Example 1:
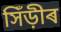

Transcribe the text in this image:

সিঁড়ীৰ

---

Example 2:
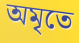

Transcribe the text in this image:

অমৃতে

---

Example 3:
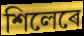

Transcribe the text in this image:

শিলেৰে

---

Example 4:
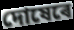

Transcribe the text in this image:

দোষেৰে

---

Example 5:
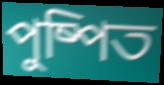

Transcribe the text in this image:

পুষ্পিত